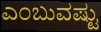
ಎಂಬುವಷ್ಟು